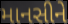
માનસીને